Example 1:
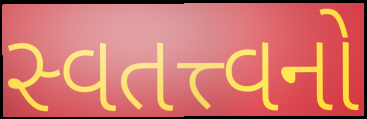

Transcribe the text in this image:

સ્વતત્ત્વનો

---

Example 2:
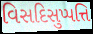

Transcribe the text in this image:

વિસદિસુપ્પત્તિ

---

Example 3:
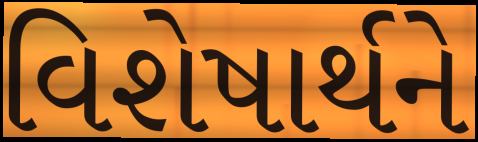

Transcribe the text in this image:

વિશેષાર્થને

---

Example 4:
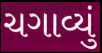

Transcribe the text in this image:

ચગાવ્યું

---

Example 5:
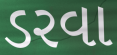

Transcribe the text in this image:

ડરવા